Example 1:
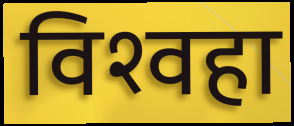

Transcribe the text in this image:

विश्वहा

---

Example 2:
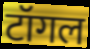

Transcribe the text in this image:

टॉगल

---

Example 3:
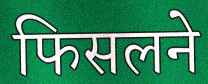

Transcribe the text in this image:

फिसलने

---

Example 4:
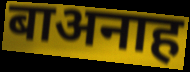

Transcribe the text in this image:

बाअनाह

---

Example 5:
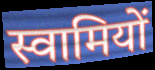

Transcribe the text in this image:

स्वामियों